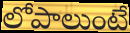
లోపాలుంటే